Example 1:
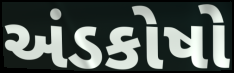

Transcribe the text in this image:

અંડકોષો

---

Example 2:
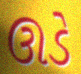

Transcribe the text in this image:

ઊડે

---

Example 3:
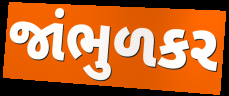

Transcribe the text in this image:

જાંભુળકર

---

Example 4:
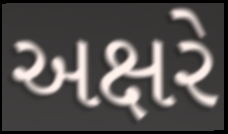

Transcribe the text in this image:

અક્ષરે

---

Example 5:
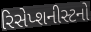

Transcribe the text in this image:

રિસેપ્શનીસ્ટનો